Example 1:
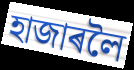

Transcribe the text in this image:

হাজাৰলৈ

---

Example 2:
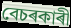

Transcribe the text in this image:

বেচৰকাৰী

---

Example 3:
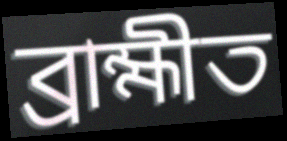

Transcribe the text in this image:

ব্ৰাহ্মীত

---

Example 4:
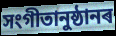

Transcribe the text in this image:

সংগীতানুষ্ঠানৰ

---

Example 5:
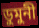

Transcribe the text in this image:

ডুমুনী